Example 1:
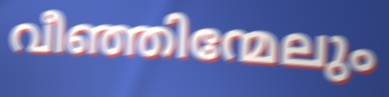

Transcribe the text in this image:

വീഞ്ഞിന്മേലും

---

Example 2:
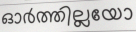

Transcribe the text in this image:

ഓർത്തില്ലയോ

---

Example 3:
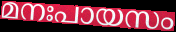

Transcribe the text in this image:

മനഃപായസം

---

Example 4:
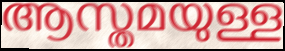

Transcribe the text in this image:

ആസ്തമയുള്ള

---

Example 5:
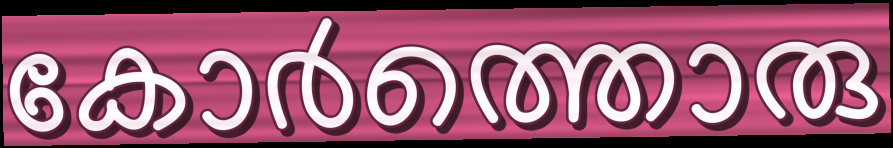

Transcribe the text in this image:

കോർത്തൊരു